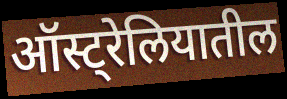
ऑस्ट्रेलियातील